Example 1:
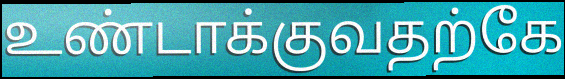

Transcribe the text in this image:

உண்டாக்குவதற்கே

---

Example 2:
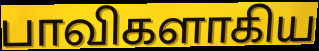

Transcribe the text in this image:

பாவிகளாகிய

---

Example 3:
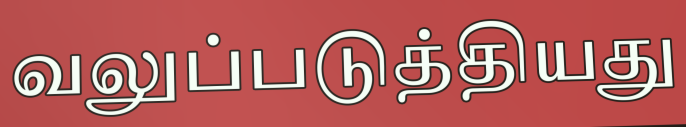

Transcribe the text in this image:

வலுப்படுத்தியது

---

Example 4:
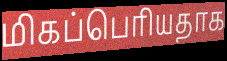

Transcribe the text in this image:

மிகப்பெரியதாக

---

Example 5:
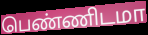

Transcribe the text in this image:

பெண்ணிடமா